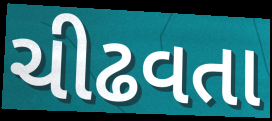
ચીઢવતા